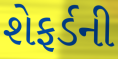
શેફર્ડની